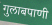
गुलाबपाणी